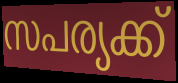
സപര്യക്ക്